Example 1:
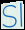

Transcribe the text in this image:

Sl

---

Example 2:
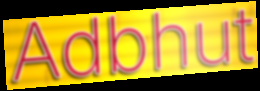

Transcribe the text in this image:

Adbhut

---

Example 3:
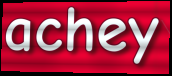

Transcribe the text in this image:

achey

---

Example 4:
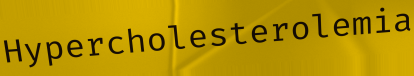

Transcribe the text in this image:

Hypercholesterolemia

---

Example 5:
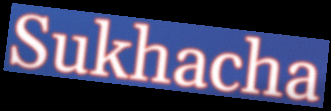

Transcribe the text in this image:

Sukhacha